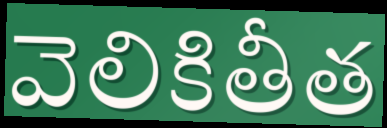
వెలికితీత